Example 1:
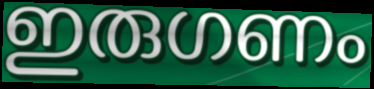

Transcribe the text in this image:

ഇരുഗണം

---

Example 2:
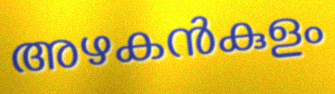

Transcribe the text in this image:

അഴകൻകുളം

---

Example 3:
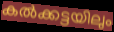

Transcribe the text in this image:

കൽക്കട്ടയിലും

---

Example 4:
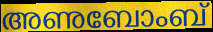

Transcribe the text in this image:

അണുബോംബ്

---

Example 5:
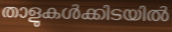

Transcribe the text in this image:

താളുകൾക്കിടയിൽ